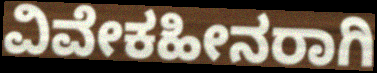
ವಿವೇಕಹೀನರಾಗಿ